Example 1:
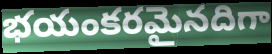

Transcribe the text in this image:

భయంకరమైనదిగా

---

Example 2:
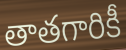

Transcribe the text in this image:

తాతగారికీ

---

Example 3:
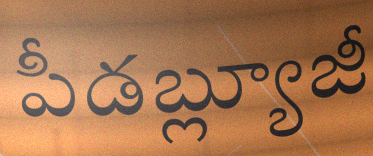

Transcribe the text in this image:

పీడబ్ల్యూజీ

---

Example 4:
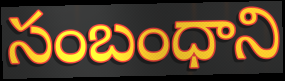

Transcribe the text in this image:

సంబంధాని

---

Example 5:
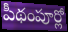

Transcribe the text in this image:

పీథంపూర్లో